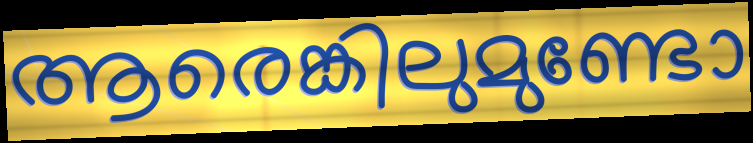
ആരെങ്കിലുമുണ്ടോ